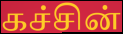
கச்சின்